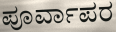
ಪೂರ್ವಾಪರ